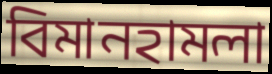
বিমানহামলা